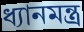
ধ্যানমন্ত্ৰ